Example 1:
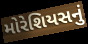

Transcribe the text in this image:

મોરેશિયસનું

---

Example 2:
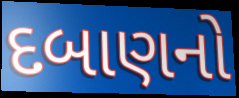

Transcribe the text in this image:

દબાણનો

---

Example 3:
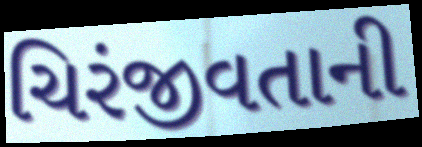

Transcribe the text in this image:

ચિરંજીવતાની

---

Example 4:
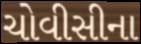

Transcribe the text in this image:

ચોવીસીના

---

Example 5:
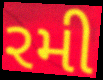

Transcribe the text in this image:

રમી